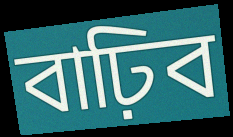
বাঢ়িব